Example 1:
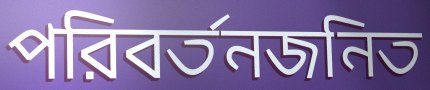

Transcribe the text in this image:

পরিবর্তনজনিত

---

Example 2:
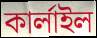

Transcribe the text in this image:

কার্লাইল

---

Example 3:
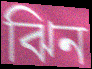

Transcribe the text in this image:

ঝিন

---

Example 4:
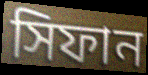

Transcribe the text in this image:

সিফান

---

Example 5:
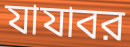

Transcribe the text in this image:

যাযাবর